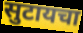
सुटायचा